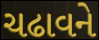
ચઢાવને